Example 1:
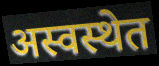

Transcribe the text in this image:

अस्वस्थेत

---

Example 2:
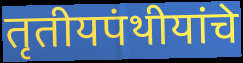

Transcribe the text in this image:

तृतीयपंथीयांचे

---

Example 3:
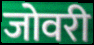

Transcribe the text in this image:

जोवरी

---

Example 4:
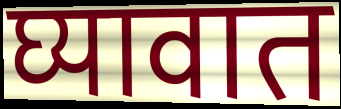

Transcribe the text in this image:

घ्यावात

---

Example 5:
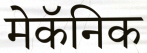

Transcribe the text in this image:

मेकॅनिक